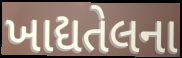
ખાદ્યતેલના